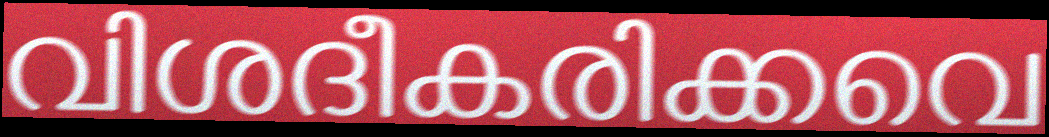
വിശദീകരിക്കവെ